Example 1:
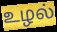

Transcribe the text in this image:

உழல்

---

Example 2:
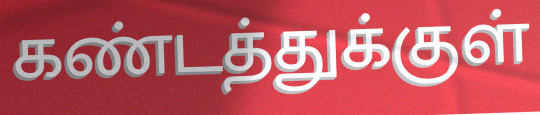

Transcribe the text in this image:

கண்டத்துக்குள்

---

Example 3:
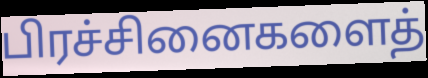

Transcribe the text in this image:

பிரச்சினைகளைத்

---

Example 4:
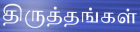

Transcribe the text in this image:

திருத்தங்கள்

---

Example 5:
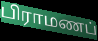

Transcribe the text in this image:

பிராமணப்